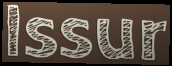
Issur